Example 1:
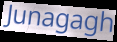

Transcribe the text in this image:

Junagagh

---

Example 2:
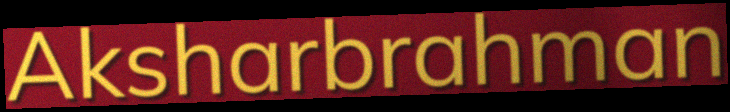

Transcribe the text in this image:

Aksharbrahman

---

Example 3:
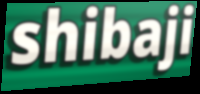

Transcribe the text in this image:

shibaji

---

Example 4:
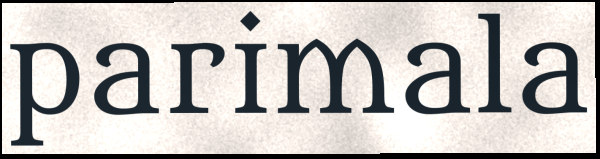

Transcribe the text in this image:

parimala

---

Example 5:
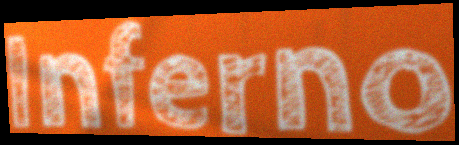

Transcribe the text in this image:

Inferno